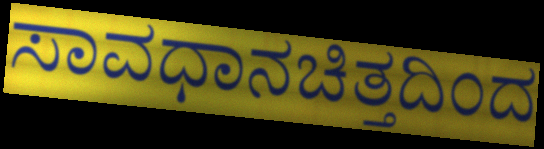
ಸಾವಧಾನಚಿತ್ತದಿಂದ